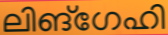
ലിങ്ഗേഹി